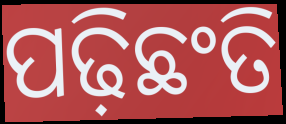
ପଢ଼ିଛଂତି